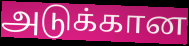
அடுக்கான